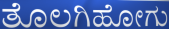
ತೊಲಗಿಹೋಗು